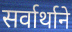
सर्वार्थाने